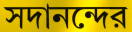
সদানন্দের